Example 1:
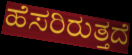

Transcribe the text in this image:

ಹೆಸರಿರುತ್ತದೆ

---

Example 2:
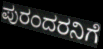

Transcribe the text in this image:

ಪುರಂದರನಿಗೆ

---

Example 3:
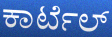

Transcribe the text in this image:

ಕಾರ್ಟೆಲ್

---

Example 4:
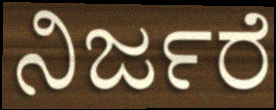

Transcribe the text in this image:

ನಿರ್ಜರೆ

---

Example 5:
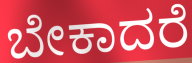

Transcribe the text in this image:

ಬೇಕಾದರೆ